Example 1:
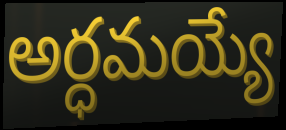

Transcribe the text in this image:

అర్ధమయ్యే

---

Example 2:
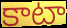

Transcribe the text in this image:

కాటా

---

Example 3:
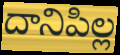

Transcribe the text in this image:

దానిపిల్ల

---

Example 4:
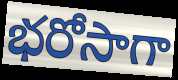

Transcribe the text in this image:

భరోసాగా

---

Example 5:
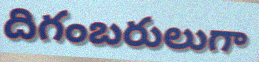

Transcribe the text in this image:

దిగంబరులుగా